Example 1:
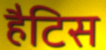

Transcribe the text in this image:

हैटिस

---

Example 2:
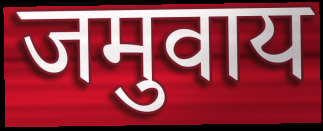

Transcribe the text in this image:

जमुवाय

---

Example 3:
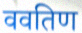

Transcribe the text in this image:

ववतिण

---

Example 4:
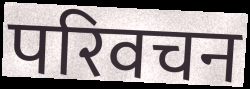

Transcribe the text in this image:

परिवचन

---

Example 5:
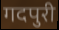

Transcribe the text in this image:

गदपुरी